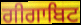
ਗੀਗਾਬਿਟ